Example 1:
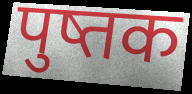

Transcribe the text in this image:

पुष्तक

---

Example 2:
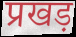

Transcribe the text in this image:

प्रखड़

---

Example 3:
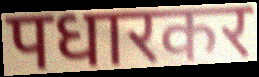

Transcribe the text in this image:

पधारकर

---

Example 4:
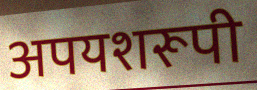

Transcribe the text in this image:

अपयशरूपी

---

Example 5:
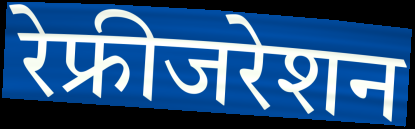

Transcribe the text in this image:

रेफ्रीजरेशन